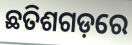
ଛତିଶଗଡ଼ରେ